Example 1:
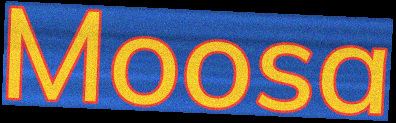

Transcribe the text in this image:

Moosa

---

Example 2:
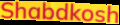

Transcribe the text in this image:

Shabdkosh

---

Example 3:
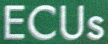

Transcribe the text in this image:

ECUs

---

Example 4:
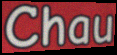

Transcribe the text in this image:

Chau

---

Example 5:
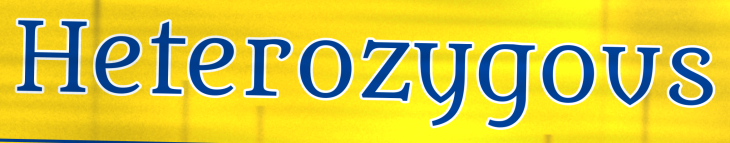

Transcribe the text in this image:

Heterozygous